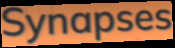
Synapses